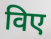
विए